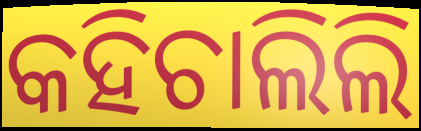
କହିଚାଲିଲି